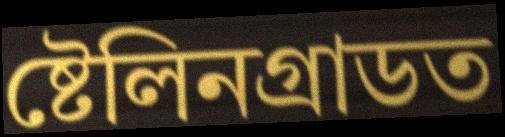
ষ্টেলিনগ্ৰাডত